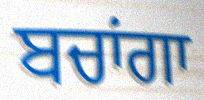
ਬਚਾਂਗਾ